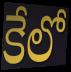
కేలో